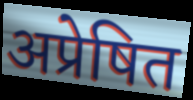
अप्रेषित